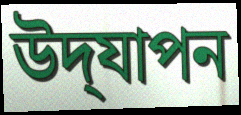
উদ্‌যাপন